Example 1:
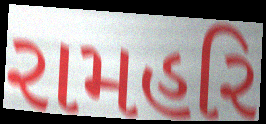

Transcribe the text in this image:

રામહરિ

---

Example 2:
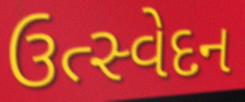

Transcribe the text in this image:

ઉત્સ્વેદન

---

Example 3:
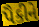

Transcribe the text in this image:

પૈકીને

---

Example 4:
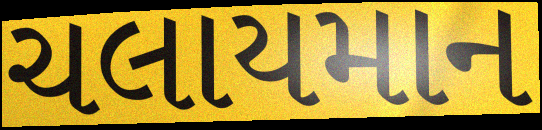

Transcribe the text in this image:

ચલાયમાન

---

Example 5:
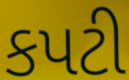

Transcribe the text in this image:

કપટી